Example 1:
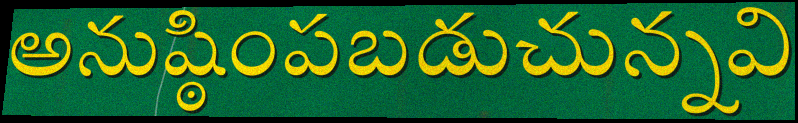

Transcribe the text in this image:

అనుష్ఠింపబడుచున్నవి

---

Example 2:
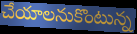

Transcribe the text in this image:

చేయాలనుకొంటున్న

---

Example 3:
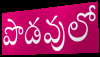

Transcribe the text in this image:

పొడవులో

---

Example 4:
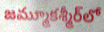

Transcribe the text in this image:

జమ్మూకశ్మీర్‌లో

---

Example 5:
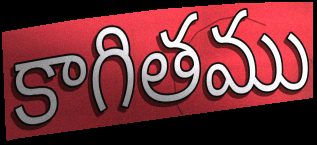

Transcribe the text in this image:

కాగితము